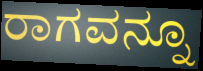
ರಾಗವನ್ನೂ